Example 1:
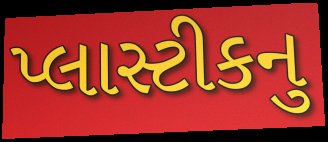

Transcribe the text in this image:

પ્લાસ્ટીકનુ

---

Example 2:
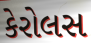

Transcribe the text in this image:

કેરોલસ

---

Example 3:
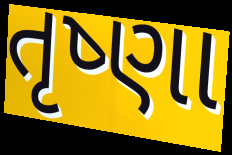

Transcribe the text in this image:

તૃષ્ણા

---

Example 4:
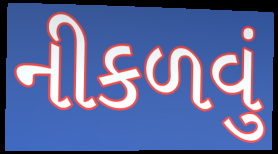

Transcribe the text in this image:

નીકળવું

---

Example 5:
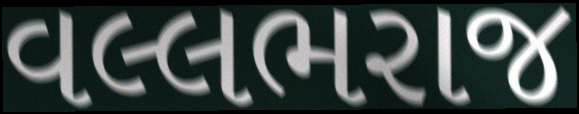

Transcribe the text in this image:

વલ્લભરાજ